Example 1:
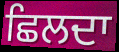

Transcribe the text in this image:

ਛਿਲਦਾ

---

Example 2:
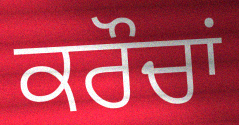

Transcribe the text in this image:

ਕਰੌਚਾਂ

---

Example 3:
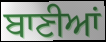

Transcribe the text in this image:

ਬਾਣੀਆਂ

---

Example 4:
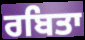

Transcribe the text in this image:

ਰਬਿਤਾ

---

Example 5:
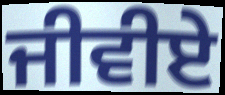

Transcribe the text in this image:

ਜੀਵੀਏ